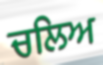
ਚਲਿਅ